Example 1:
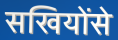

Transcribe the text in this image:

सखियोंसे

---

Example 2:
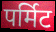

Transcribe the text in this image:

पर्मिट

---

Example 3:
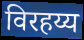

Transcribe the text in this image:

विरहय्य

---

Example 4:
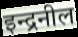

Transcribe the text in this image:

इन्द्रनील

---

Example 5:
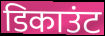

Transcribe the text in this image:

डिकाउंट